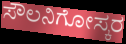
ಸೌಲನಿಗೋಸ್ಕರ